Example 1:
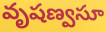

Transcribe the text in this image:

వృషణ్వసూ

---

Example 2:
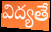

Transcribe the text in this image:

విద్యతే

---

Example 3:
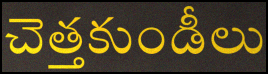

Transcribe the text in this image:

చెత్తకుండీలు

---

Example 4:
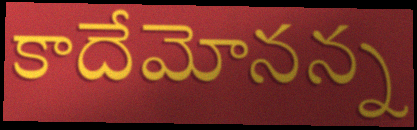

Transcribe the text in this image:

కాదేమోనన్న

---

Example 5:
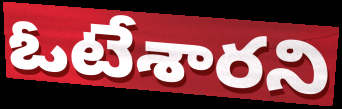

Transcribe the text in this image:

ఓటేశారని